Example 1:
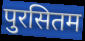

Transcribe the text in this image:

पुरसितम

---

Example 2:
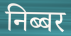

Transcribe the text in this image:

निब्बर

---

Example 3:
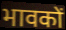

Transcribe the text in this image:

भावकों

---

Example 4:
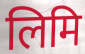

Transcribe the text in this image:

लिमि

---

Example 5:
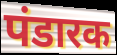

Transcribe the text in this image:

पंडारक